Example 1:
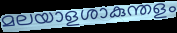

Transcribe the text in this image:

മലയാളശാകുന്തളം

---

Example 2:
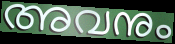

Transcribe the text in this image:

അവനും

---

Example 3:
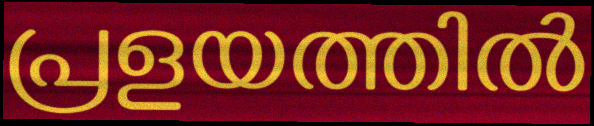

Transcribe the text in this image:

പ്രളയത്തിൽ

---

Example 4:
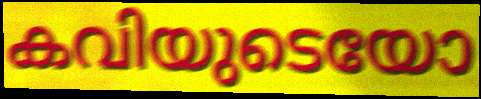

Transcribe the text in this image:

കവിയുടെയോ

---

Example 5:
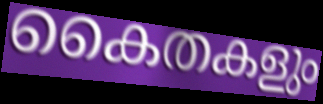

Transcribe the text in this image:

കൈതകളും